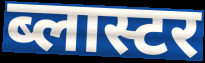
ब्लास्टर